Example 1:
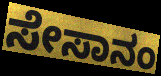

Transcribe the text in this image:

ಸೇಸಾನಂ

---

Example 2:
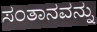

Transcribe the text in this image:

ಸಂತಾನವನ್ನು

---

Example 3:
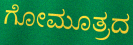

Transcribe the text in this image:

ಗೋಮೂತ್ರದ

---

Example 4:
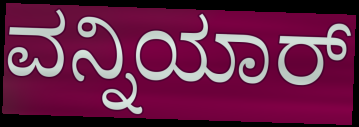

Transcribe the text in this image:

ವನ್ನಿಯಾರ್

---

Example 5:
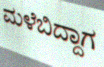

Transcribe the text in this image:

ಮಳೆಬಿದ್ದಾಗ